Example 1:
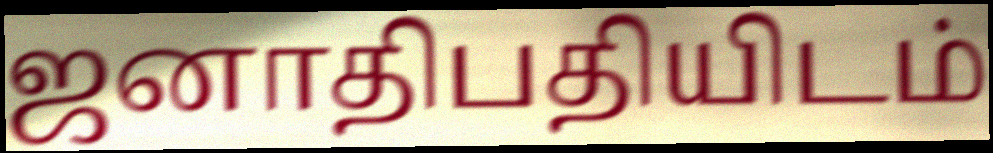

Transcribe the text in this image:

ஜனாதிபதியிடம்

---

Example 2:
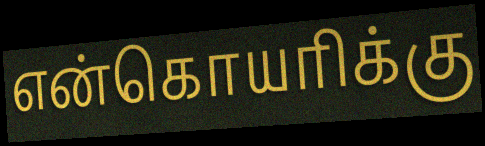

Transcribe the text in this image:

என்கொயரிக்கு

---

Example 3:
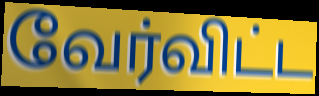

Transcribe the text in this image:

வேர்விட்ட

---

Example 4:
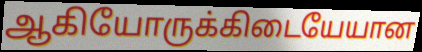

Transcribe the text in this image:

ஆகியோருக்கிடையேயான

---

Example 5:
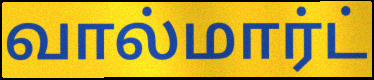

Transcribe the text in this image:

வால்மார்ட்